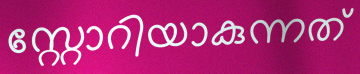
സ്റ്റോറിയാകുന്നത്